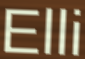
Elli